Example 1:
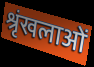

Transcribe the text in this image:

श्रृंखलाओं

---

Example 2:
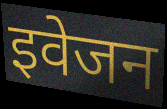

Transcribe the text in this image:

इवेजन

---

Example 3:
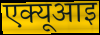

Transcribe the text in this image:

एक्यूआइ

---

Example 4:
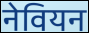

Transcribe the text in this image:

नेवियन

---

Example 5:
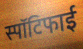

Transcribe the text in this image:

स्पॉटिफाई